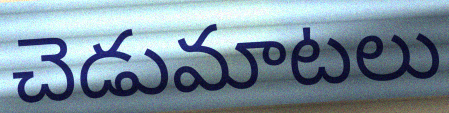
చెడుమాటలు